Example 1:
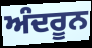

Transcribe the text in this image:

ਅੰਦਰੂਨ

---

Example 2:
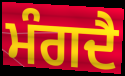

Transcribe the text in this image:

ਮੰਗਦੈ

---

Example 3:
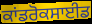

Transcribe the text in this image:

ਕਾਂਡਰੋਕਸਾਈਡ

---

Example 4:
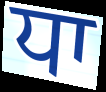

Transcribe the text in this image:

ਧਾ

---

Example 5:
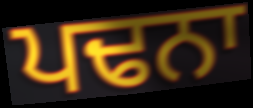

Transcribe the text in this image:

ਪਢਨਾ